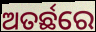
ଅତର୍ଛରେ